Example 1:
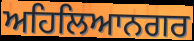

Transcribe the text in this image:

ਅਹਿਲਿਆਨਗਰ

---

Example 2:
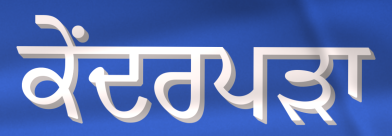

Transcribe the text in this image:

ਕੇਂਦਰਪੜਾ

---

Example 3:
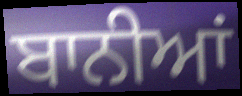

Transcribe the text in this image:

ਬਾਨੀਆਂ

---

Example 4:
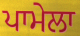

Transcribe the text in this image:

ਪਾਮੇਲਾ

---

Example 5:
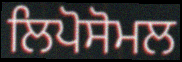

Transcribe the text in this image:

ਲਿਪੋਸੋਮਲ